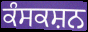
ਕੰਸਕਸ਼ਨ